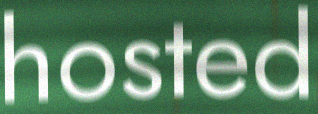
hosted